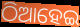
ଠିଆହେଇ